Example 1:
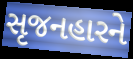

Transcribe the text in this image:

સૃજનહારને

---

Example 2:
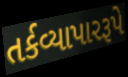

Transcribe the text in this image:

તર્કવ્યાપારરૂપે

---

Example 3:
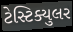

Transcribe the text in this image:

ટેસ્ટિક્યુલર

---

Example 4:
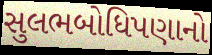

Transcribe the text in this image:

સુલભબોધિપણાનો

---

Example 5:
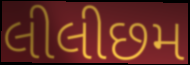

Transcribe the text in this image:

લીલીછમ